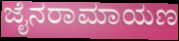
ಜೈನರಾಮಾಯಣ